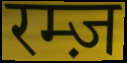
रम्ज़